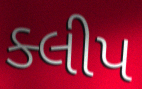
ક્લીપ